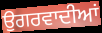
ਉਗਰਵਾਦੀਆਂ